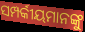
ସମ୍ପର୍କୀୟମାନଙ୍କୁ